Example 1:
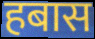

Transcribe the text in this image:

हबास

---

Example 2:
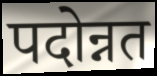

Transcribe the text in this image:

पदोन्नत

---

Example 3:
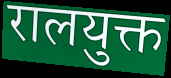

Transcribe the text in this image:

रालयुक्त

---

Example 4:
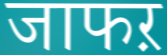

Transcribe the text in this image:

जाफऱ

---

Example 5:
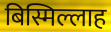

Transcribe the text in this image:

बिस्मिल्‍लाह